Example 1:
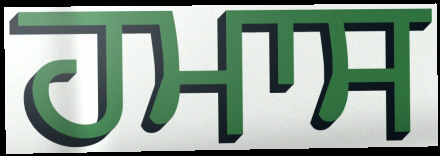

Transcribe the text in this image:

ਹਮਾਸ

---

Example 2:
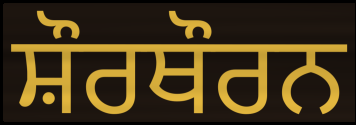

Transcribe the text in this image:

ਸ਼ੌਰਥੌਰਨ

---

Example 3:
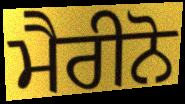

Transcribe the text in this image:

ਮੈਰੀਨੋ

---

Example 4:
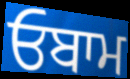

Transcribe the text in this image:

ਓਬਾਮ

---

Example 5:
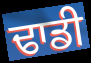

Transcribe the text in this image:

ਢਾਡੀ